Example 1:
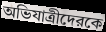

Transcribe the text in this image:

অভিযাত্রীদেরকে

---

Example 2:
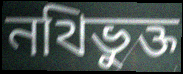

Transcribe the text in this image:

নথিভুক্ত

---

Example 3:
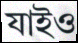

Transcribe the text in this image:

যাইও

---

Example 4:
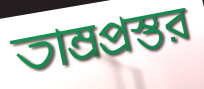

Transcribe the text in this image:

তাম্রপ্রস্তর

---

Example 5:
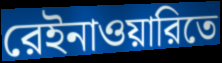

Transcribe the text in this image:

রেইনাওয়ারিতে